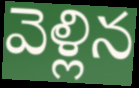
వెళ్లిన